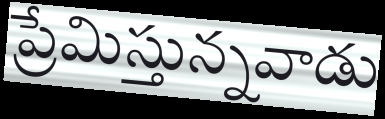
ప్రేమిస్తున్నవాడు